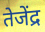
तेजेंद्र